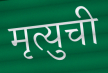
मृत्युची